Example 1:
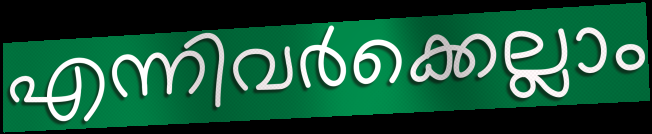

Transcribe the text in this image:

എന്നിവർക്കെല്ലാം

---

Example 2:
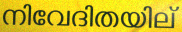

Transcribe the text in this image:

നിവേദിതയില്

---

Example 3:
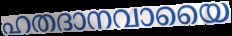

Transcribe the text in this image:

ഹതദാനവായൈ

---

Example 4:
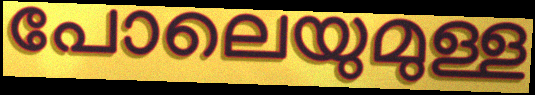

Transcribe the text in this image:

പോലെയുമുള്ള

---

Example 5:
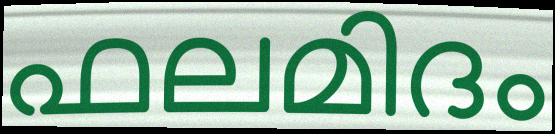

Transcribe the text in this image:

ഫലമിദം